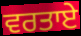
ਵਰਤਾਏ